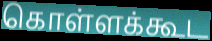
கொள்ளக்கூட